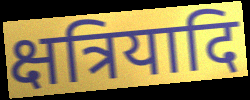
क्षत्रियादि